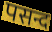
पसन्द